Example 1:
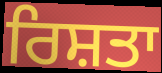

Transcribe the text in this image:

ਰਿਸ਼ਤਾ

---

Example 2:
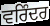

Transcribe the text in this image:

ਵਰਿੰਦਰ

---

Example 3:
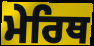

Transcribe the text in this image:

ਮੇਰਿਥ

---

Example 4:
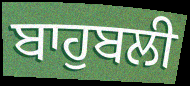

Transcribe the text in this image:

ਬਾਹੁਬਲੀ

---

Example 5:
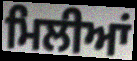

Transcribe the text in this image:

ਮਿਲੀਆਂ